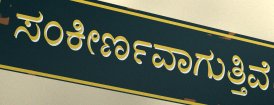
ಸಂಕೀರ್ಣವಾಗುತ್ತಿವೆ